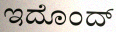
ಇದೊಂದ್